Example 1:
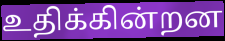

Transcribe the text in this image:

உதிக்கின்றன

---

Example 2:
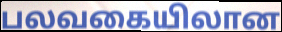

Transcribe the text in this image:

பலவகையிலான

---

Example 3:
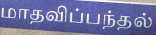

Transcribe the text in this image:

மாதவிப்பந்தல்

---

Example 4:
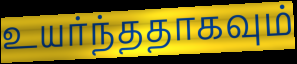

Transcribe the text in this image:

உயர்ந்ததாகவும்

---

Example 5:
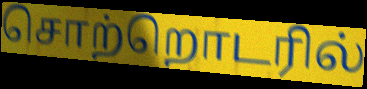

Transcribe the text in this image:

சொற்றொடரில்